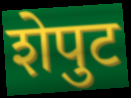
शेपुट